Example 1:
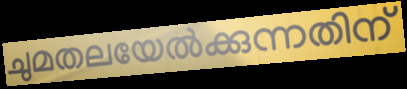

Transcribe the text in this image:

ചുമതലയേൽക്കുന്നതിന്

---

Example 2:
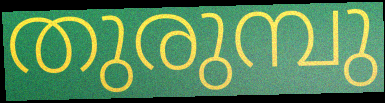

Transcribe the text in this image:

തുരുമ്പു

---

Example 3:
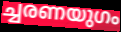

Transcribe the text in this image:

ച്ചരണയുഗം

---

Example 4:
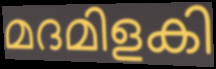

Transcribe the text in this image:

മദമിളകി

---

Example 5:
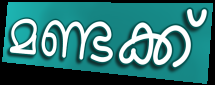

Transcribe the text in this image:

മണ്ടക്ക്